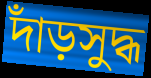
দাঁড়সুদ্ধ